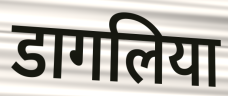
डागलिया